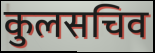
कुलसचिव